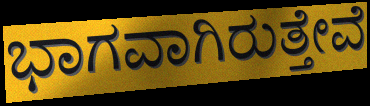
ಭಾಗವಾಗಿರುತ್ತೇವೆ